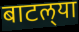
बाटल्या